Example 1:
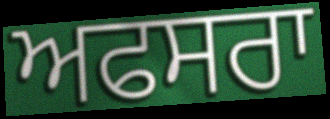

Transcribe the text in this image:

ਅਫਸਰਾ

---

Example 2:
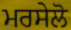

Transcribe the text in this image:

ਮਰਸੇਲੋ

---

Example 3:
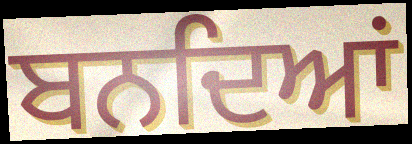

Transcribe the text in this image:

ਬਨਦਿਆਂ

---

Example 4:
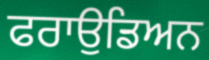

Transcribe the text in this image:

ਫਰਾਉਡਿਅਨ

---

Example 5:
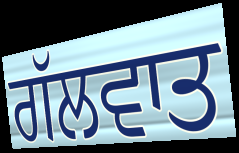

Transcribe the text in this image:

ਗੱਲਵਾਤ